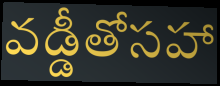
వడ్డీతోసహా